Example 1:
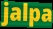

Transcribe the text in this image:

jalpa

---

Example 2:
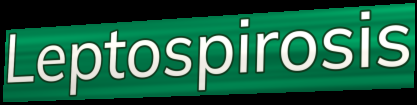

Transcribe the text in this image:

Leptospirosis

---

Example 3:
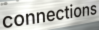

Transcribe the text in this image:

connections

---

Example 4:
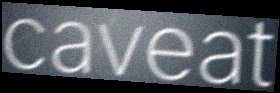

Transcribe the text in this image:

caveat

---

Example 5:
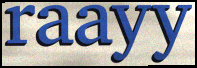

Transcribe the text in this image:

raayy